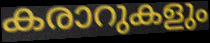
കരാറുകളും